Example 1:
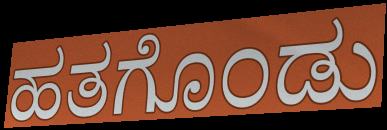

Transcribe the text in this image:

ಹತಗೊಂಡು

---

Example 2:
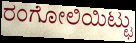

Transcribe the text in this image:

ರಂಗೋಲಿಯಿಟ್ಟು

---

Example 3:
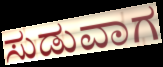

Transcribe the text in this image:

ಸುಡುವಾಗ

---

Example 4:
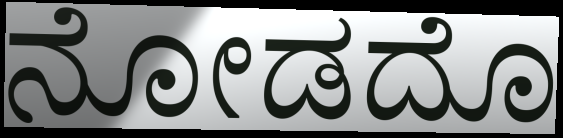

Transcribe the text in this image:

ನೋಡದೊ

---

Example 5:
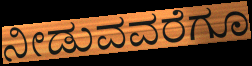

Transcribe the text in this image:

ನೀಡುವವರೆಗೂ